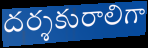
దర్శకురాలిగా